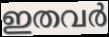
ഇതവർ